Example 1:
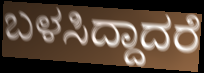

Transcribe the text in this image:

ಬಳಸಿದ್ದಾದರೆ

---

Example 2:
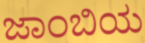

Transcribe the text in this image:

ಜಾಂಬಿಯ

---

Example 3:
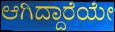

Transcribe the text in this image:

ಆಗಿದ್ದಾರೆಯೇ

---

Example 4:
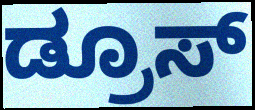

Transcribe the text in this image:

ಡ್ರೂಸ್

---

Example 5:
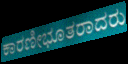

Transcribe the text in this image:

ಕಾರಣೀಭೂತರಾದರು